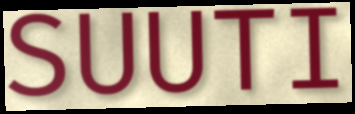
SUUTI